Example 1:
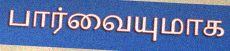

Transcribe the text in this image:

பார்வையுமாக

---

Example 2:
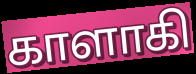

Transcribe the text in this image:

காளாகி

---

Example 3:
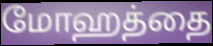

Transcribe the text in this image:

மோஹத்தை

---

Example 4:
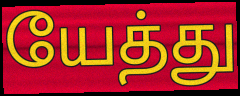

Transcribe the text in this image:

யேத்து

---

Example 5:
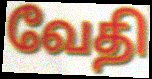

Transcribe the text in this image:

வேதி